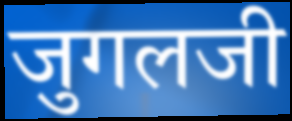
जुगलजी